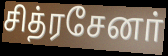
சித்ரசேனர்